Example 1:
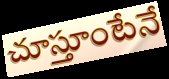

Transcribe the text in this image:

చూస్తూంటేనే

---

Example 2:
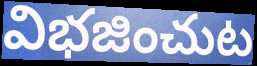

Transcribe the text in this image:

విభజించుట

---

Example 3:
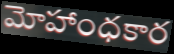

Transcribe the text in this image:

మోహాంధకార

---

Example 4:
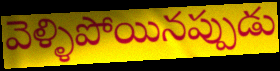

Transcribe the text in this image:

వెళ్ళిపోయినప్పుడు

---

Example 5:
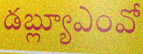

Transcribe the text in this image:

డబ్ల్యూఎంవో